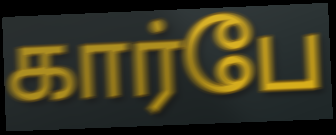
கார்பே